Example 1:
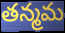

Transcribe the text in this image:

తన్మమ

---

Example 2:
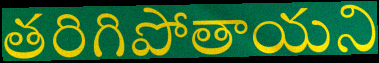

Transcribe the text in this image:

తరిగిపోతాయని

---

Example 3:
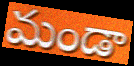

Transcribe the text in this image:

మండా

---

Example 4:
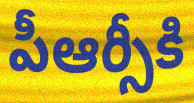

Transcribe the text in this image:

పీఆర్సీకి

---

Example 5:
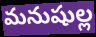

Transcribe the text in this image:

మనుషుల్ల